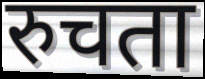
रुचता